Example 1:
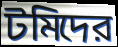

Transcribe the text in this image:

টমিদের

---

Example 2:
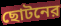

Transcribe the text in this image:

ছোটনের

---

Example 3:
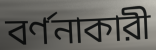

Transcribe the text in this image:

বর্ণনাকারী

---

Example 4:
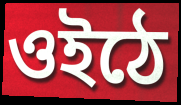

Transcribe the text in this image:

ওইঠে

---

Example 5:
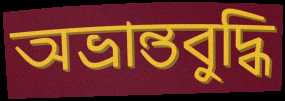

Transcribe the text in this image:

অভ্রান্তবুদ্ধি